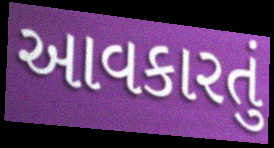
આવકારતું